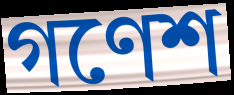
গণেশ